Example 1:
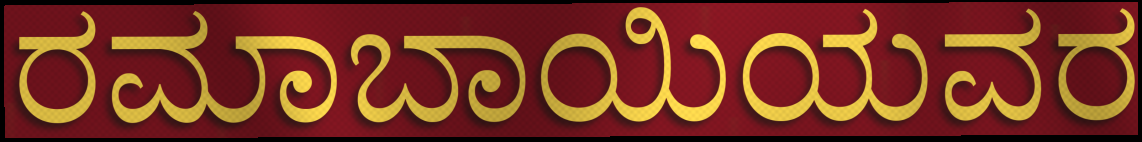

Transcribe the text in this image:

ರಮಾಬಾಯಿಯವರ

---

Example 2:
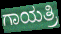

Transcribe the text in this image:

ಗಾಯತ್ರಿ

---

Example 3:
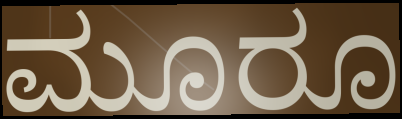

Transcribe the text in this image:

ಮೂರೂ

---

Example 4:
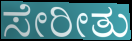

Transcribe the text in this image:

ಸೇರೀತು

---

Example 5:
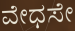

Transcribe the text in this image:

ವೇಧಸೇ